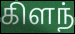
கிளந்